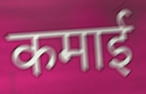
कमाई